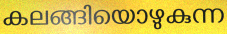
കലങ്ങിയൊഴുകുന്ന